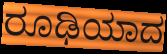
ರೂಢಿಯಾದ